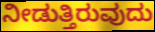
ನೀಡುತ್ತಿರುವುದು